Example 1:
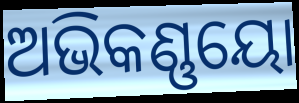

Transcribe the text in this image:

ଅଭିକଣ୍ଣୟୋ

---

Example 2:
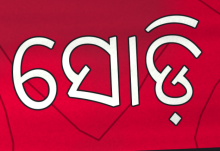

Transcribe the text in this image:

ସୋଡ଼ି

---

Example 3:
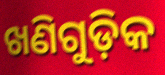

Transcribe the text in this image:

ଖଣିଗୁଡ଼ିକ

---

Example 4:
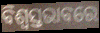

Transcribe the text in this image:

ବିଶ୍ୱସ୍ତଭାବରେ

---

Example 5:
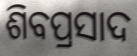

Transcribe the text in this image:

ଶିବପ୍ରସାଦ